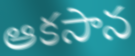
ఆకసాన